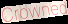
Crowned